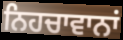
ਨਿਹਚਾਵਾਨਾਂ